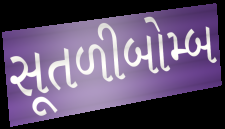
સૂતળીબોમ્બ